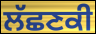
ਲੱਛਣਕੀ